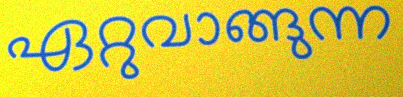
ഏറ്റുവാങ്ങുന്ന